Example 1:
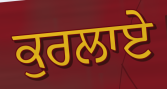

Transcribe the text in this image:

ਕੁਰਲਾਏ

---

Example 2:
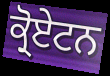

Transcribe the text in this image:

ਕ੍ਰੋਏਟਨ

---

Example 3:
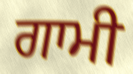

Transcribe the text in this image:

ਗਾਮੀ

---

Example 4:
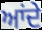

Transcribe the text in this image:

ਆਂਦੇ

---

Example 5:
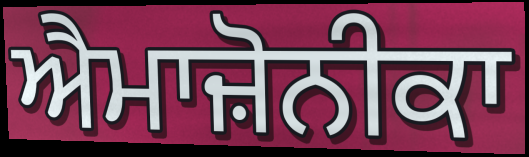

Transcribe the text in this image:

ਐਮਾਜ਼ੋਨੀਕਾ